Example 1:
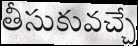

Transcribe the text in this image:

తీసుకువచ్చే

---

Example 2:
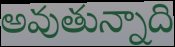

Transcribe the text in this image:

అవుతున్నాది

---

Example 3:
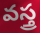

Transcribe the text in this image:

వస్త్ర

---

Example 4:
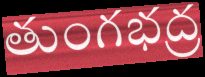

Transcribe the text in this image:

తుంగభద్ర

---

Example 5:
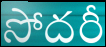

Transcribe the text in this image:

సోదరీ